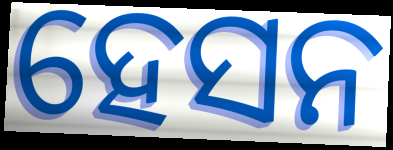
ହେସନ